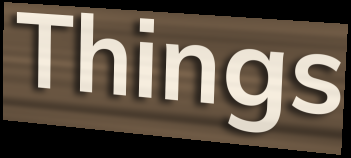
Things